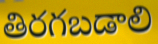
తిరగబడాలి